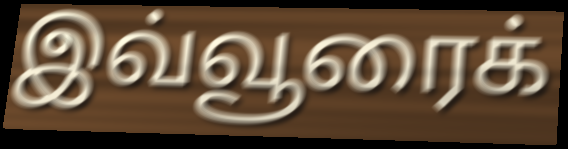
இவ்வூரைக்